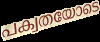
പക്വതയോടെ